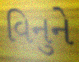
વિનુને